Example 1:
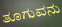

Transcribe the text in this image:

ತೂಗುವನು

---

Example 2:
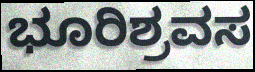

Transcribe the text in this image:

ಭೂರಿಶ್ರವಸ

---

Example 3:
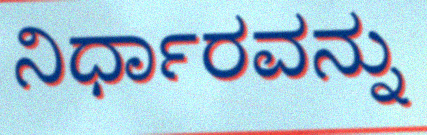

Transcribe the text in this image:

ನಿರ್ಧಾರವನ್ನು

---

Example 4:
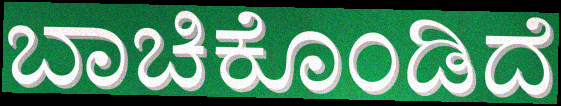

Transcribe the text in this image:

ಬಾಚಿಕೊಂಡಿದೆ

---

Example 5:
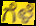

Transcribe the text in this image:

ಗೆಳೆ